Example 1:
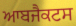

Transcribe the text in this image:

ਆਬਜੈਕਟਸ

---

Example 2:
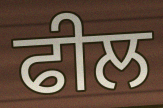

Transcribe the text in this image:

ਫੀਲ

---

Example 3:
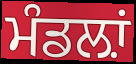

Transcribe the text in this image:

ਮੰਡਲ਼ਾਂ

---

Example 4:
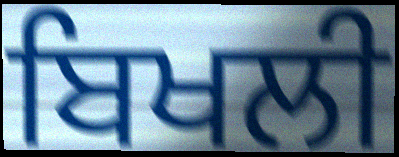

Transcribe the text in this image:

ਬਿਖਲੀ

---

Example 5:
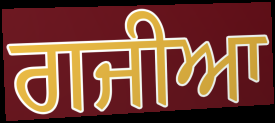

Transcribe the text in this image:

ਗਜੀਆ